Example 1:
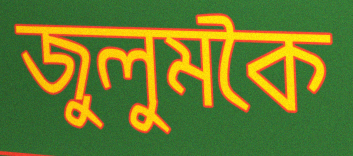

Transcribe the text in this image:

জুলুমকৈ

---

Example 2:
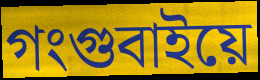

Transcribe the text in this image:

গংগুবাইয়ে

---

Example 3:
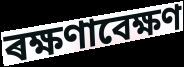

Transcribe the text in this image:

ৰক্ষণাবেক্ষণ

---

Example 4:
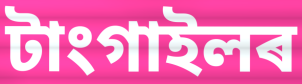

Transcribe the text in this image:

টাংগাইলৰ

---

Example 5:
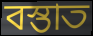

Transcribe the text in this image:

বস্তাত